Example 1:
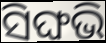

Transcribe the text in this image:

ସିଙ୍ଘଭି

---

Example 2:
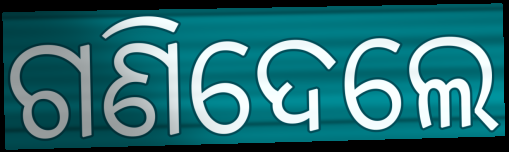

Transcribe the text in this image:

ଗଣିଦେଲେ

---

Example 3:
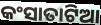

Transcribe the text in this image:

କଂସାତାଟିଆ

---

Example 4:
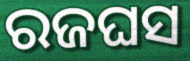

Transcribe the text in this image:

ରଜଘସ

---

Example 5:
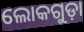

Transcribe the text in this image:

ଲୋକଗୁଡ଼ା